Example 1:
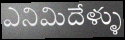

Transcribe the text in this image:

ఎనిమిదేళ్ళు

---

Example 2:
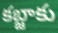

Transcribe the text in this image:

కబ్జాకు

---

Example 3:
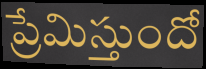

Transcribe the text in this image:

ప్రేమిస్తుందో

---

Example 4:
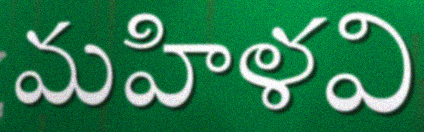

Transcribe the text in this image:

మహిళవి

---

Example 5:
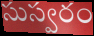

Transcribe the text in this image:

సుస్వరం